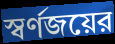
স্বর্ণজয়ের